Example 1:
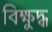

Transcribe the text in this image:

বিক্ষুদ্ধ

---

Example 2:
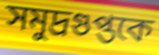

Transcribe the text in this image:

সমুদ্রগুপ্তকে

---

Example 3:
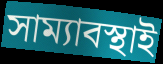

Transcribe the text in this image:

সাম্যাবস্থাই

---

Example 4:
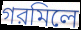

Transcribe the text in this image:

গরমিলে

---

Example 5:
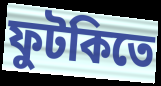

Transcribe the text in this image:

ফুটকিতে